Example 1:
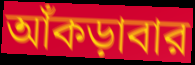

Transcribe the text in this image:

আঁকড়াবার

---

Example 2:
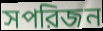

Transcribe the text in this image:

সপরিজন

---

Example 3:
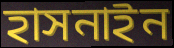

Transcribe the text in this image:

হাসনাইন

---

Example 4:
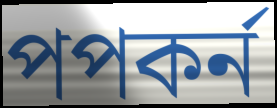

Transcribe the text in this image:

পপকর্ন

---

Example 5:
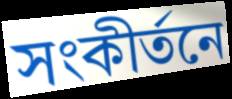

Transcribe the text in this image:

সংকীর্তনে